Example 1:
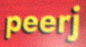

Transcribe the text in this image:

peerj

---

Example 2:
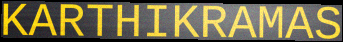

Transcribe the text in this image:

KARTHIKRAMAS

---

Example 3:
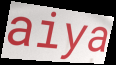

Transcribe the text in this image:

aiya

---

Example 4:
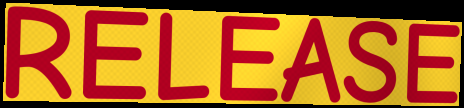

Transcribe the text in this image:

RELEASE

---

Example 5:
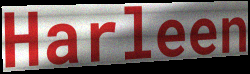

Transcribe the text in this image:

Harleen